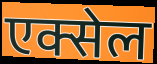
एक्सेल